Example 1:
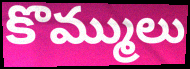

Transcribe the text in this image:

కొమ్ములు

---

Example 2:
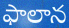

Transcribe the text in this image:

ఫాలాన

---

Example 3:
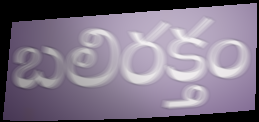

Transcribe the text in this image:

బలిరక్తం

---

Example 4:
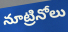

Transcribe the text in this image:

నూట్రినోలు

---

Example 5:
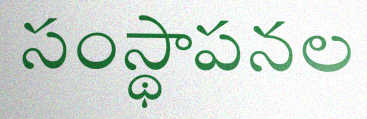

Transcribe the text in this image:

సంస్థాపనల